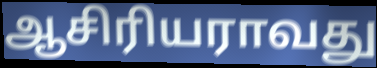
ஆசிரியராவது